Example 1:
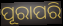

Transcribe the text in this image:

ପୂରାପରି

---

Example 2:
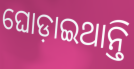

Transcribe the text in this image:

ଘୋଡ଼ାଇଥାନ୍ତି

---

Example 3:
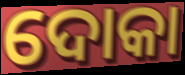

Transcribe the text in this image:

ଦୋକା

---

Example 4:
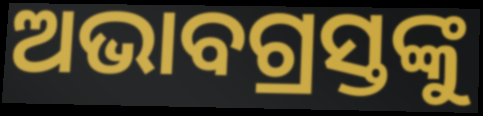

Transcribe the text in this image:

ଅଭାବଗ୍ରସ୍ତଙ୍କୁ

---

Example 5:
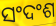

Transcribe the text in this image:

ସଂଦଂଶ